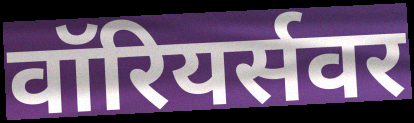
वॉरियर्सवर